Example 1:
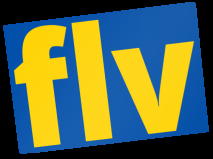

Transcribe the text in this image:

flv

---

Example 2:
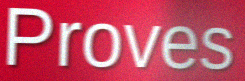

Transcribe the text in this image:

Proves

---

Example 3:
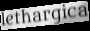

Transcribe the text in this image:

lethargica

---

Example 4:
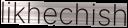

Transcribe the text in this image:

likhechish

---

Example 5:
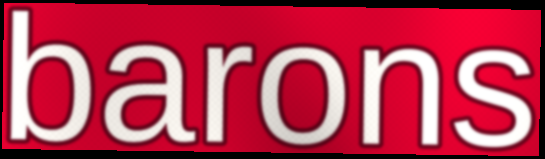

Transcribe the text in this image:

barons